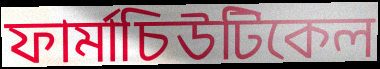
ফাৰ্মাচিউটিকেল